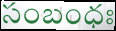
సంబంధః